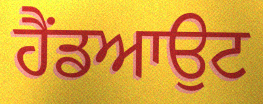
ਹੈਂਡਆਉਟ